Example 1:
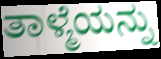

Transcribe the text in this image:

ತಾಳ್ಮೆಯನ್ನು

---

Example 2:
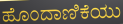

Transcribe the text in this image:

ಹೊಂದಾಣಿಕೆಯು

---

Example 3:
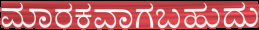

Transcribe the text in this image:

ಮಾರಕವಾಗಬಹುದು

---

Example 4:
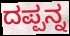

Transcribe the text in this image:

ದಪ್ಪನ್ನ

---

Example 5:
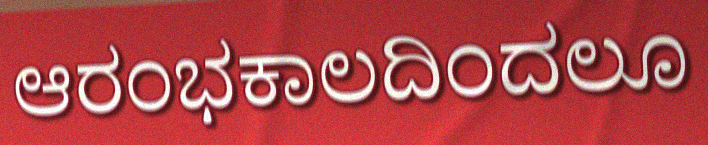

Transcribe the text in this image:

ಆರಂಭಕಾಲದಿಂದಲೂ